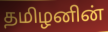
தமிழனின்